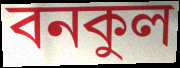
বনকুল